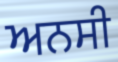
ਅਨਸੀ